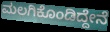
ಮಲಗಿಕೊಂಡಿದ್ದೇನೆ